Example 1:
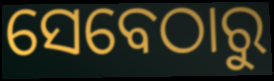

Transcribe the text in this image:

ସେବେଠାରୁ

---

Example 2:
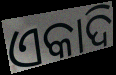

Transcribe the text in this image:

ଏକାଦି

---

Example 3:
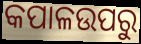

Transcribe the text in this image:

କପାଳଉପରୁ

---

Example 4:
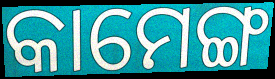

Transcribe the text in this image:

କାମେଙ୍ଗ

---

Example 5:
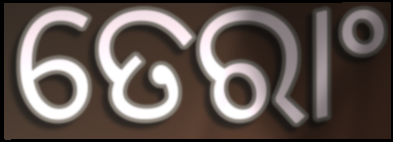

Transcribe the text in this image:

ତେରାଂ